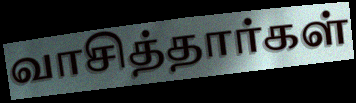
வாசித்தார்கள்